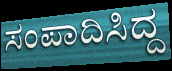
ಸಂಪಾದಿಸಿದ್ದ